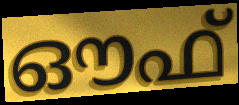
ഔഫ്